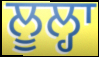
ਲੂਲ੍ਹਾ